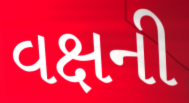
વક્ષની